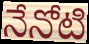
నేనోటి